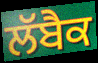
ਲੱਬੈਕ